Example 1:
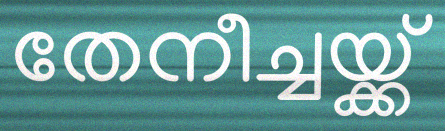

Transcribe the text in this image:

തേനീച്ചയ്ക്ക്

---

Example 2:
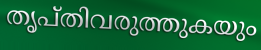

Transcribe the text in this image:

തൃപ്തിവരുത്തുകയും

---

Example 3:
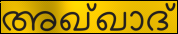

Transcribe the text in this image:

അഖ്ഖാദ്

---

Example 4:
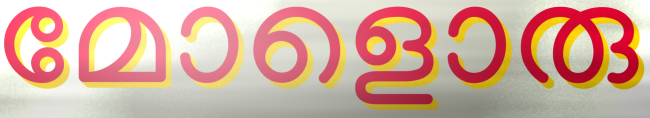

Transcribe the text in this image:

മോളൊരു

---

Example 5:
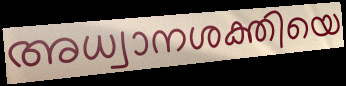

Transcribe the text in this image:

അധ്വാനശക്തിയെ